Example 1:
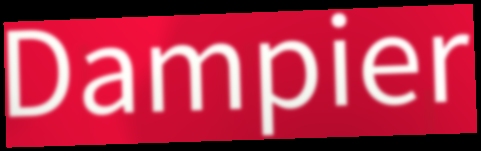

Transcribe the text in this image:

Dampier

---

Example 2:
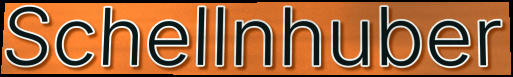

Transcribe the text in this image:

Schellnhuber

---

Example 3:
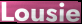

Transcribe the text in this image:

Lousie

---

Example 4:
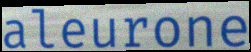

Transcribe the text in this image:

aleurone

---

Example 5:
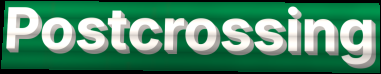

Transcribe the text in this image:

Postcrossing